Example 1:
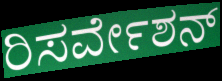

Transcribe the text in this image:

ರಿಸರ್ವೇಶನ್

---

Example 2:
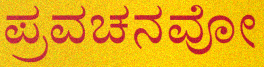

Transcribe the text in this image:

ಪ್ರವಚನವೋ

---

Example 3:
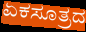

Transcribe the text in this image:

ಏಕಸೂತ್ರದ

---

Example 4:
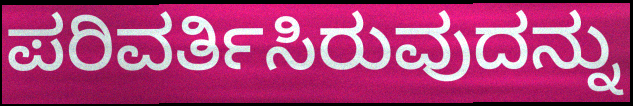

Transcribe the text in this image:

ಪರಿವರ್ತಿಸಿರುವುದನ್ನು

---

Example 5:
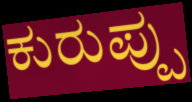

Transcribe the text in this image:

ಕುರುಪ್ಪು